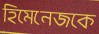
হিমেনেজকে